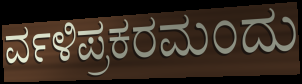
ರ್ವಳಿಪ್ರಕರಮಂದು